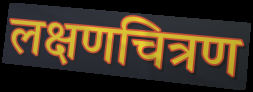
लक्षणचित्रण